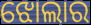
ଝୋଲାର